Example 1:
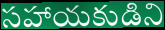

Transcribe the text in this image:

సహాయకుడిని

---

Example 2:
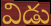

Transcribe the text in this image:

విడు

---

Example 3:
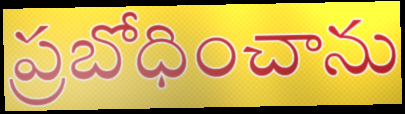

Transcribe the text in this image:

ప్రబోధించాను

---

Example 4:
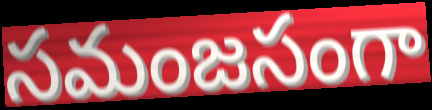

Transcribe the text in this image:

సమంజసంగా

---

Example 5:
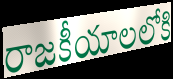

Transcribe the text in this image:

రాజకీయాలలోకి